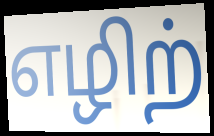
எழிற்